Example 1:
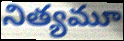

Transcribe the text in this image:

నిత్యమూ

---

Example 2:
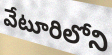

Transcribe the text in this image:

వేటూరిలోని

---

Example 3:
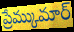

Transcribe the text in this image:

ప్రేమ్కుమార్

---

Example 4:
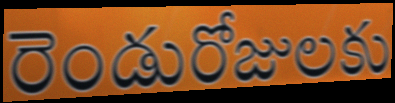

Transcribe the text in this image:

రెండురోజులకు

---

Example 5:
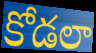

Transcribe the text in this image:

కోడలా